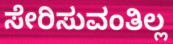
ಸೇರಿಸುವಂತಿಲ್ಲ